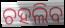
ଚହଲିବ